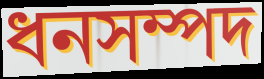
ধনসম্পদ